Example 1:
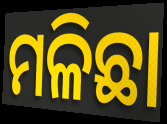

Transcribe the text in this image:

ମଳିଛା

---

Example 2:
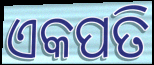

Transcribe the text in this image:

ଏକପତି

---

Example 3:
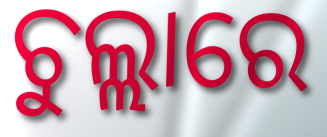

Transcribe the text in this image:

ଚୁଲ୍ଲାରେ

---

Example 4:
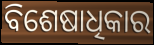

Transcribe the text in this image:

ବିଶେଷାଧିକାର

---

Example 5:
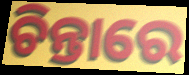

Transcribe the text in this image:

ଚିନ୍ତାରେ